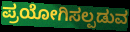
ಪ್ರಯೋಗಿಸಲ್ಪಡುವ